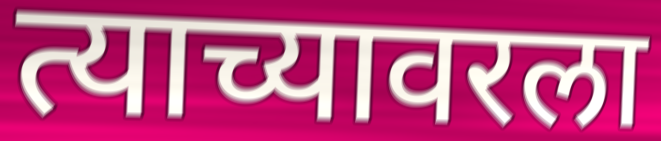
त्याच्यावरला